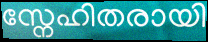
സ്നേഹിതരായി